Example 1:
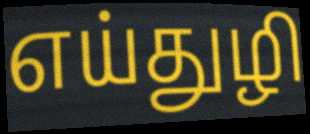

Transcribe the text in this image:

எய்துழி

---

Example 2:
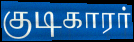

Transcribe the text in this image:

குடிகாரர்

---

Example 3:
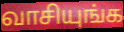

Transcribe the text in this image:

வாசியுங்க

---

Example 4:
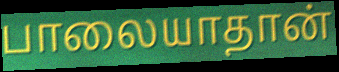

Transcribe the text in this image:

பாலையாதான்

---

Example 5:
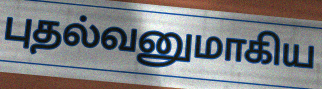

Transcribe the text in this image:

புதல்வனுமாகிய